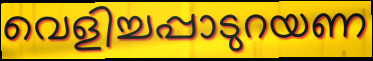
വെളിച്ചപ്പാടുറയണ